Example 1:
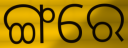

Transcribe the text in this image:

ଙ୍ଗରେ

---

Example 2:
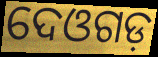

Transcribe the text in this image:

ଦେଓଗଡ଼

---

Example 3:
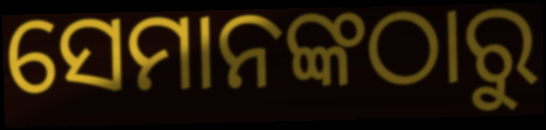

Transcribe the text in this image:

ସେମାନଙ୍କଠାରୁ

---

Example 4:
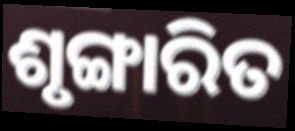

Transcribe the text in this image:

ଶୃଙ୍ଗାରିତ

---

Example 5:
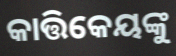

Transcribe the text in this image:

କାତ୍ତିକେୟଙ୍କୁ